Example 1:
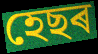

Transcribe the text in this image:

হেছৰ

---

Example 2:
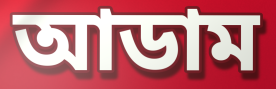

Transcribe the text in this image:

আডাম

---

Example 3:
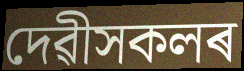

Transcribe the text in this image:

দেৱীসকলৰ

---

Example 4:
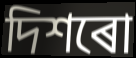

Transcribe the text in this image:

দিশৰো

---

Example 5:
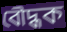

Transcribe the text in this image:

বৌদ্ধক